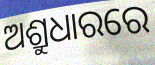
ଅଶ୍ରୁଧାରରେ